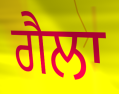
ਗੈਲਾ